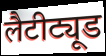
लैटीट्यूड